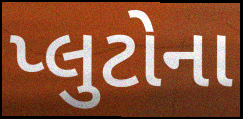
પ્લુટોના